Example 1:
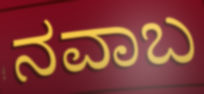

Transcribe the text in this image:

ನವಾಬ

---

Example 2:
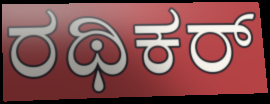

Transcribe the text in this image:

ರಥಿಕರ್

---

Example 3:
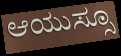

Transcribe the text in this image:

ಆಯುಸ್ಸೂ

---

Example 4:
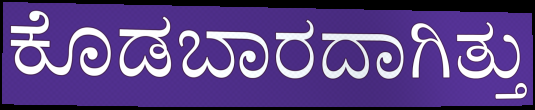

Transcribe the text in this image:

ಕೊಡಬಾರದಾಗಿತ್ತು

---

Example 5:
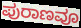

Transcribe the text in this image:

ಪುರಾಣವೂ